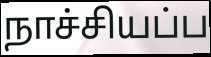
நாச்சியப்ப